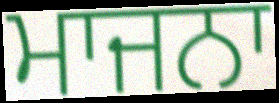
ਮਾਜਨਾ